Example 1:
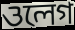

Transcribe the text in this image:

ওলেগ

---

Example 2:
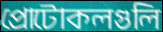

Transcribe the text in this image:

প্রোটোকলগুলি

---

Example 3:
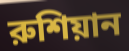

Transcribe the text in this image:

রুশিয়ান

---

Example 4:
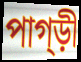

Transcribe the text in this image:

পাগ্ড়ী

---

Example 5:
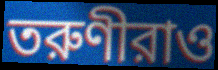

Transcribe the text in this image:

তরুণীরাও